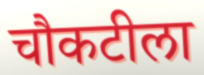
चौकटीला